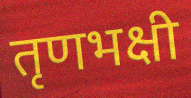
तृणभक्षी